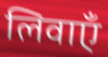
लिवाएँ